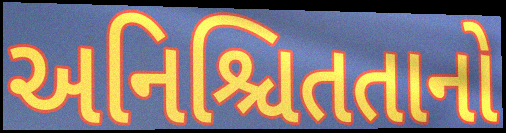
અનિશ્ચિતતાનો